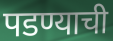
पडण्याची